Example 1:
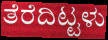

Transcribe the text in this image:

ತೆರೆದಿಟ್ಟಳು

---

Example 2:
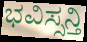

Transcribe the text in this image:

ಭವಿಸ್ಸನ್ತಿ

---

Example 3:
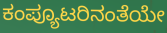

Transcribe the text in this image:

ಕಂಪ್ಯೂಟರಿನಂತೆಯೇ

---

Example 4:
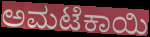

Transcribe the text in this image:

ಅಮಟೆಕಾಯಿ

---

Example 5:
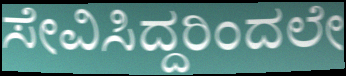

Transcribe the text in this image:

ಸೇವಿಸಿದ್ದರಿಂದಲೇ